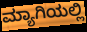
ಮ್ಯಾಗಿಯಲ್ಲಿ